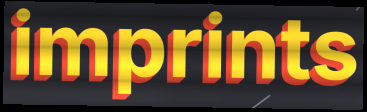
imprints